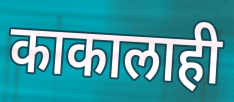
काकालाही